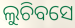
ଲୁଚିବସେ